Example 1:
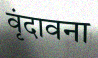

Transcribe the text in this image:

वृंदावना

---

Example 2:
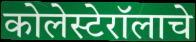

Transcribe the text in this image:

कोलेस्टेरॉलाचे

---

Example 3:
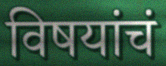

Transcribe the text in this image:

विषयांचं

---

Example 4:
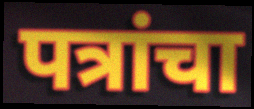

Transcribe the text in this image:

पत्रांचा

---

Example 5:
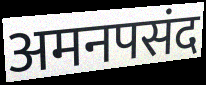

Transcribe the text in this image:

अमनपसंद